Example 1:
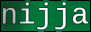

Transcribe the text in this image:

nijja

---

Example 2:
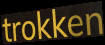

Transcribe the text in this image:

trokken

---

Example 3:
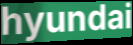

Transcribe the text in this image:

hyundai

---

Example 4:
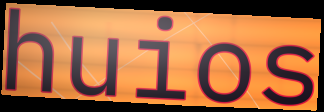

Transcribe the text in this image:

huios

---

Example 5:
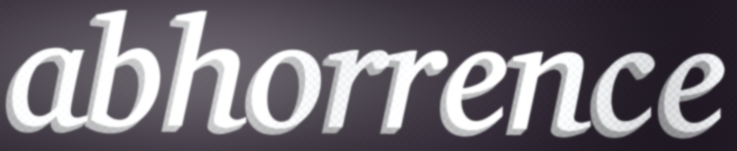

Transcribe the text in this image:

abhorrence